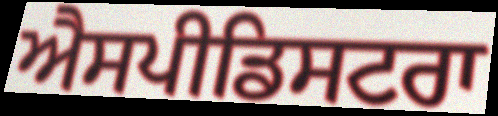
ਐਸਪੀਡਿਸਟਰਾ